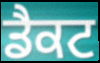
ਡੈਕਟ